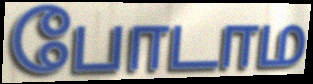
போடாம